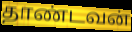
தாண்டவன்